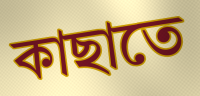
কাছাতে